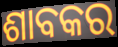
ଶାବକର